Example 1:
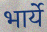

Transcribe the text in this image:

भार्ये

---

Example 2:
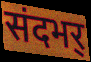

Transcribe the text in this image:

संदभर्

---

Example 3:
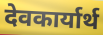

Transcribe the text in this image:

देवकार्यार्थ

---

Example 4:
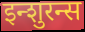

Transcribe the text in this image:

इन्शुरन्स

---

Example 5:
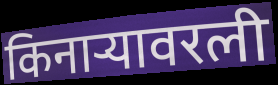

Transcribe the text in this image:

किनाऱ्यावरली